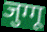
जुग्गू